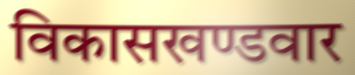
विकासखण्‍डवार